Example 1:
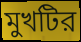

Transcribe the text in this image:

মুখটির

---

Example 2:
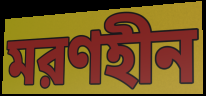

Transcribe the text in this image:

মরণহীন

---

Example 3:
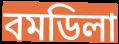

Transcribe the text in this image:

বমডিলা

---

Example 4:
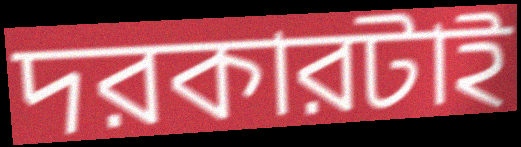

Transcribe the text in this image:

দরকারটাই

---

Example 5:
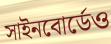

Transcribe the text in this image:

সাইনবোর্ডেও